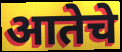
आतेचे